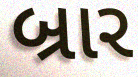
બ્રાર